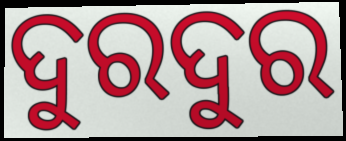
ଦୁରଦୁର